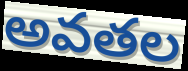
అవతల